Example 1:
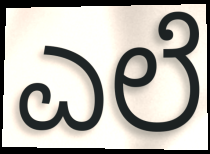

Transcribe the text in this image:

ಎಲೆ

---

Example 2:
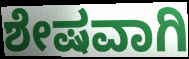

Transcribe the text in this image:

ಶೇಷವಾಗಿ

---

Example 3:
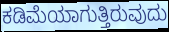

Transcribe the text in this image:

ಕಡಿಮೆಯಾಗುತ್ತಿರುವುದು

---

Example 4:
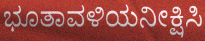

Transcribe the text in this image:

ಭೂತಾವಳಿಯನೀಕ್ಷಿಸಿ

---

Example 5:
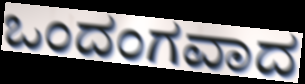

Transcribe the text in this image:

ಒಂದಂಗವಾದ